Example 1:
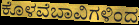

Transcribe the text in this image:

ಕೊಳವೆಬಾವಿಗಳಿಂದ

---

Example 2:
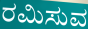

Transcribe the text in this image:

ರಮಿಸುವ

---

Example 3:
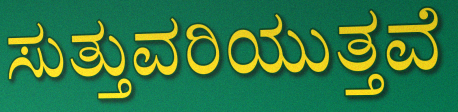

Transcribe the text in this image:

ಸುತ್ತುವರಿಯುತ್ತವೆ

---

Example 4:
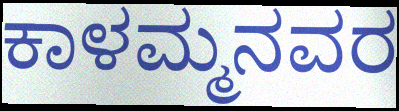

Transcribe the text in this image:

ಕಾಳಮ್ಮನವರ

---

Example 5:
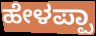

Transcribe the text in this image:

ಹೇಳಪ್ಪಾ